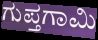
ಗುಪ್ತಗಾಮಿ